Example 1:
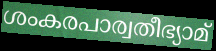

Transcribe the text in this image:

ശംകരപാര്വതീഭ്യാമ്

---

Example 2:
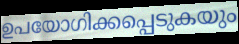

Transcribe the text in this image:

ഉപയോഗിക്കപ്പെടുകയും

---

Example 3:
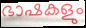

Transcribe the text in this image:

ഭാഷകളും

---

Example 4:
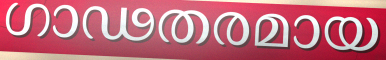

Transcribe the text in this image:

ഗാഢതരമായ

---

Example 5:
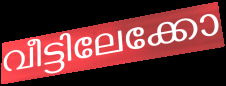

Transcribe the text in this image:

വീട്ടിലേക്കോ